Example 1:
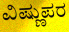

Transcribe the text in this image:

ವಿಷ್ಣುಪರ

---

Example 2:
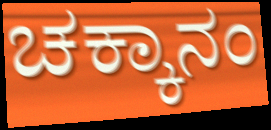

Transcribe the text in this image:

ಚಕ್ಕಾನಂ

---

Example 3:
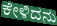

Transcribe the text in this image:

ಕೇಳಿದನು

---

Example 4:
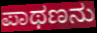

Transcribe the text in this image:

ಪಾಥಣನು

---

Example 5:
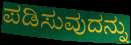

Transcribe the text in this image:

ಪಡಿಸುವುದನ್ನು